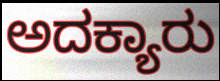
ಅದಕ್ಯಾರು